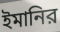
ইমানির